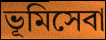
ভূমিসেবা